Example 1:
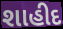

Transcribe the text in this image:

શાહીદ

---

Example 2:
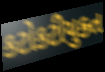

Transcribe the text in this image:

કટોકટીયુક્ત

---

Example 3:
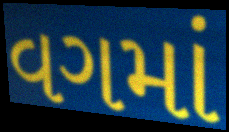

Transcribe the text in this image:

વગમાં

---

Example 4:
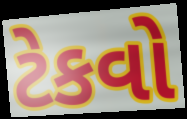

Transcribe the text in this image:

ટેકવો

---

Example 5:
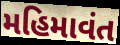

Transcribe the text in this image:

મહિમાવંત